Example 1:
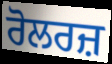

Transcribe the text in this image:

ਰੋਲਰਜ਼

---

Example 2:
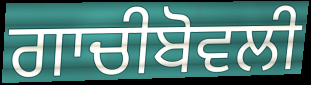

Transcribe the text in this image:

ਗਾਚੀਬੋਵਲੀ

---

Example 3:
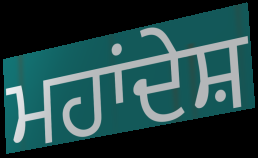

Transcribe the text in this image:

ਮਹਾਂਦੇਸ਼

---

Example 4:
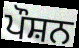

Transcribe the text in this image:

ਪੌਸ਼ਨ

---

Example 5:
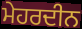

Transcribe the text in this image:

ਮੇਹਰਦੀਨ